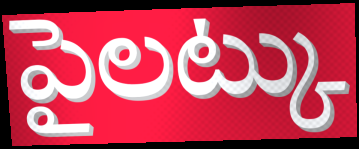
పైలట్కు